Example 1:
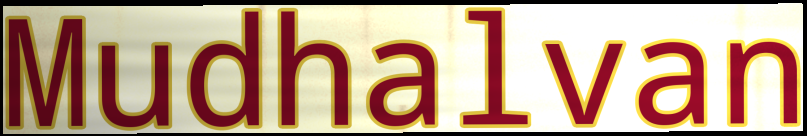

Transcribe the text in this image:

Mudhalvan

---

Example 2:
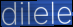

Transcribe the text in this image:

dilele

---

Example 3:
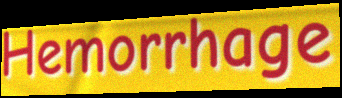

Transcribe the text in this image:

Hemorrhage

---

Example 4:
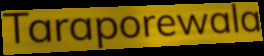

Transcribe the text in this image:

Taraporewala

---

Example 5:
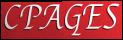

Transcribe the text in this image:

CPAGES